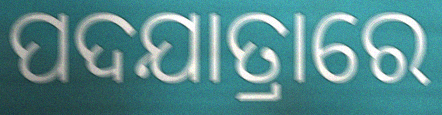
ପଦଯାତ୍ରାରେ